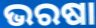
ଭରଷା